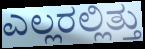
ಎಲ್ಲರಲ್ಲಿತ್ತು